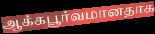
ஆக்கபூர்வமானதாக